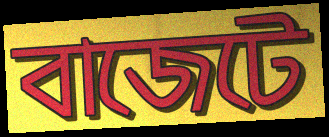
বাজেটে